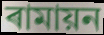
ৰামায়ন